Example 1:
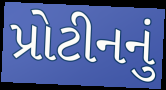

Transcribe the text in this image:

પ્રોટીનનું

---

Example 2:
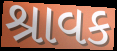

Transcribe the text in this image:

શ્રાવક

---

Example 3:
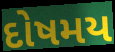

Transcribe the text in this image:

દોષમય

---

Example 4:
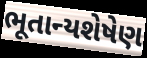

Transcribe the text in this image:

ભૂતાન્યશેષેણ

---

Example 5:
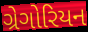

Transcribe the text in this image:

ગ્રેગોરિયન